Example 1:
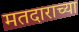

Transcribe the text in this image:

मतदाराच्या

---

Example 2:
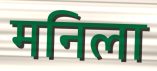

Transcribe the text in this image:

मनिला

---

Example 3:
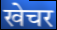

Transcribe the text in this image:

खेचर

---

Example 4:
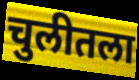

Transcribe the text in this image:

चुलीतला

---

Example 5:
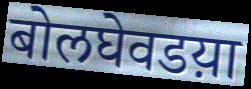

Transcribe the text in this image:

बोलघेवडय़ा